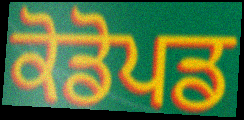
ਕੋਡੋਪਡ